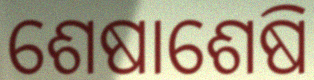
ଶେଷାଶେଷି